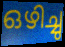
ഒഴിച്ചു